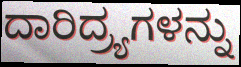
ದಾರಿದ್ರ್ಯಗಳನ್ನು